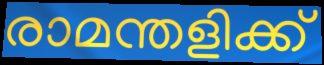
രാമന്തളിക്ക്